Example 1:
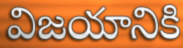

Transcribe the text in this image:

విజయానికి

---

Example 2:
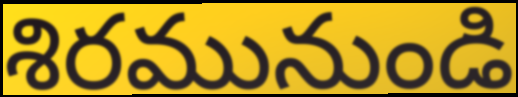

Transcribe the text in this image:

శిరమునుండి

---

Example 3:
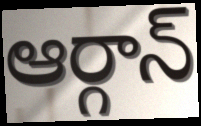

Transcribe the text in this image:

ఆర్గాన్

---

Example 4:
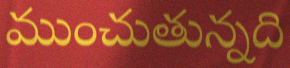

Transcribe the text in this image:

ముంచుతున్నది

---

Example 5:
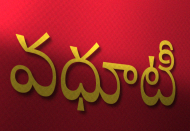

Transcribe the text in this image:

వధూటీ